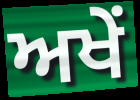
ਅਖੇਂ